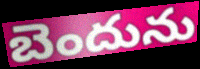
బెందును